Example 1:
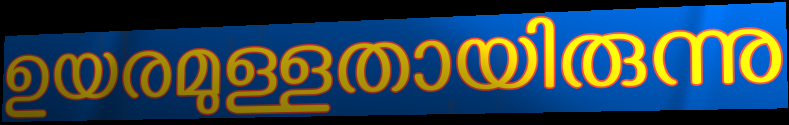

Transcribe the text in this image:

ഉയരമുള്ളതായിരുന്നു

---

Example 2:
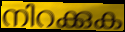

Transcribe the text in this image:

നിറക്കുക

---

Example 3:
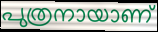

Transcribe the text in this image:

പുത്രനായാണ്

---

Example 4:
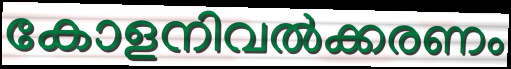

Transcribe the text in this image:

കോളനിവൽക്കരണം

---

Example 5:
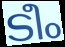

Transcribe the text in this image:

ടീം